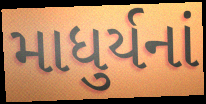
માધુર્યનાં